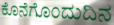
ಕೊನೆಗೊಂದುದಿನ